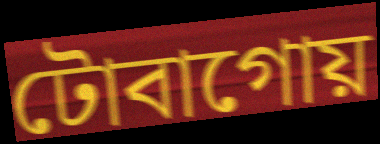
টোবাগোয়